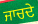
ਜਾਚਦੇ